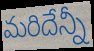
మరిదేన్నీ